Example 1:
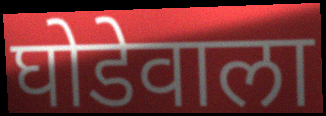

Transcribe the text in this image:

घोडेवाला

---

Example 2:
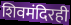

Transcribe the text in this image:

शिवमंदिरही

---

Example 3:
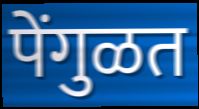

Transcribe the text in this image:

पेंगुळत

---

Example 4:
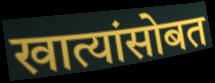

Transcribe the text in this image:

खात्यांसोबत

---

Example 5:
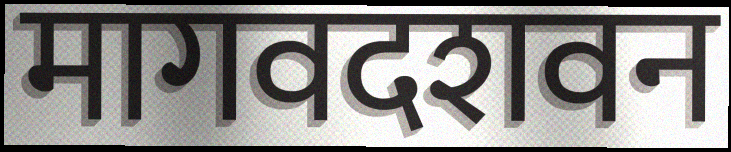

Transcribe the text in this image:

मागवदशवन